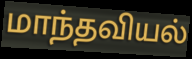
மாந்தவியல்